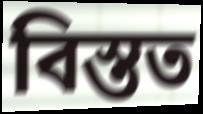
বিস্তত